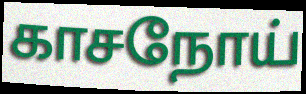
காசநோய்